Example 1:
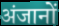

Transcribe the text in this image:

अंजानों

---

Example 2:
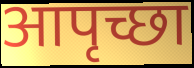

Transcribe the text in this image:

आपृच्छा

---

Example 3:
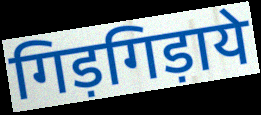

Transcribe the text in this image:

गिड़गिड़ाये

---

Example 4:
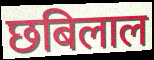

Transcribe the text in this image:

छबिलाल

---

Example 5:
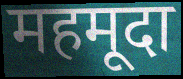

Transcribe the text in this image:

महमूदा